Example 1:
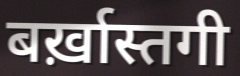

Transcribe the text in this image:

बर्ख़ास्तगी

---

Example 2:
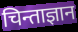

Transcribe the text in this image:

चिन्ताज्ञान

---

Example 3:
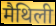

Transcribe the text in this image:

मैथिली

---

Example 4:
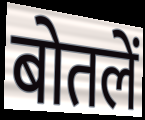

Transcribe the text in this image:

बोतलें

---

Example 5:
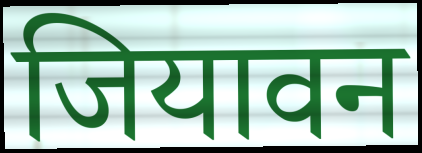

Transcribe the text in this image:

जियावन